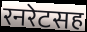
रनरेटसह